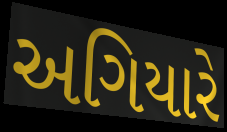
અગિયારે